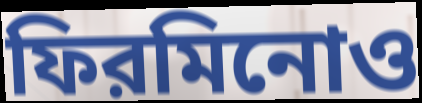
ফিরমিনোও